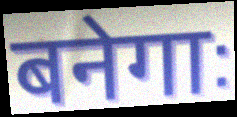
बनेगाः